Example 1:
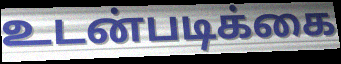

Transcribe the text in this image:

உடன்படிக்கை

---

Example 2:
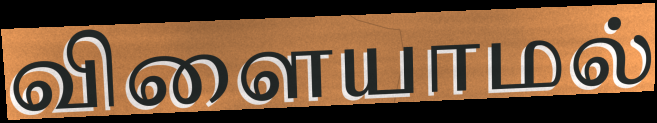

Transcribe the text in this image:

விளையாமல்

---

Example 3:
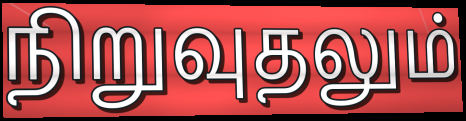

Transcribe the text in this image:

நிறுவுதலும்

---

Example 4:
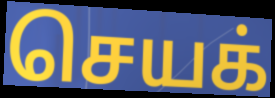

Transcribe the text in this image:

செயக்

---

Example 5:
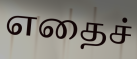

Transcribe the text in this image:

எதைச்